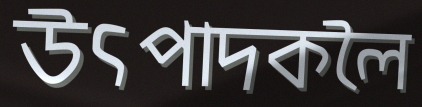
উৎপাদকলৈ